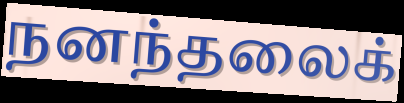
நனந்தலைக்